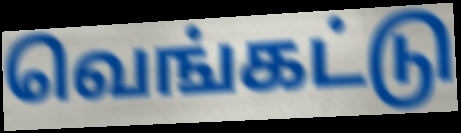
வெங்கட்டு